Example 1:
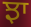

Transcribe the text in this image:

ਝਾ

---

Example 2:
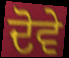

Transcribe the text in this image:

ਦੋਵੇ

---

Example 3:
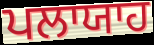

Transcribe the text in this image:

ਪਲਾਯਾਹ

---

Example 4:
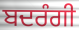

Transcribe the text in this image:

ਬਦਰੰਗੀ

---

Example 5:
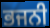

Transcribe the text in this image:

ਭਜਨੀ